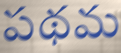
పథమ